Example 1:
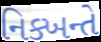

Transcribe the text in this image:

નિક્ખન્તે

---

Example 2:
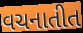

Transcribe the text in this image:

વચનાતીત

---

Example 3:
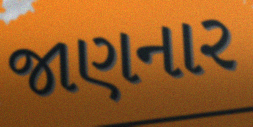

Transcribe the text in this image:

જાણનાર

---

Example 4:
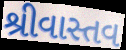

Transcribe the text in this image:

શ્રીવાસ્તવ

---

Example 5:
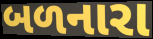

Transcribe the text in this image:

બળનારા